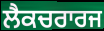
ਲੈਕਚਰਾਰਜ